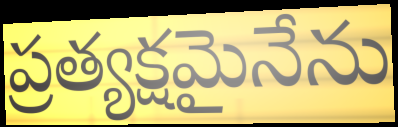
ప్రత్యక్షమైనేను